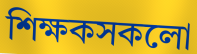
শিক্ষকসকলো